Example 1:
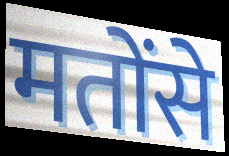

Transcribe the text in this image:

मतोंसे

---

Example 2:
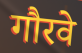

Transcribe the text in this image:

गौरवे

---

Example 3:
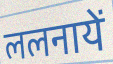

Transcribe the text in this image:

ललनायें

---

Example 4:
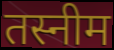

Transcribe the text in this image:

तस्नीम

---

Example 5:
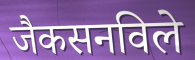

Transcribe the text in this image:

जैकसनविले